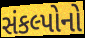
સંકલ્પોનો